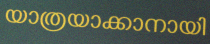
യാത്രയാക്കാനായി